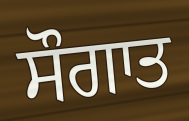
ਸੌਗਾਤ